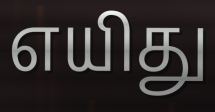
எயிது